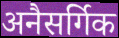
अनैसर्गिक